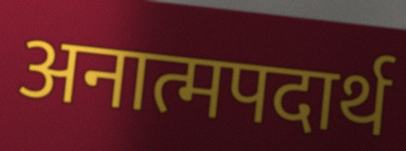
अनात्मपदार्थ